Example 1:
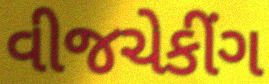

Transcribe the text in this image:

વીજચેકીંગ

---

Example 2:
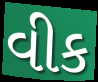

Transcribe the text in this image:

વીક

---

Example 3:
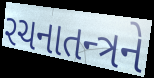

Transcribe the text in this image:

રચનાતન્ત્રને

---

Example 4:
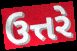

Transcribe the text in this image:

ઉત્તરે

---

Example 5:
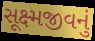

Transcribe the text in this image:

સૂક્ષ્મજીવનું